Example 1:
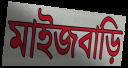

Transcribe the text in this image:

মাইজবাড়ি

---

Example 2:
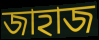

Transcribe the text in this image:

জাহাজ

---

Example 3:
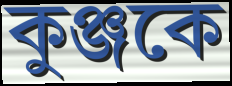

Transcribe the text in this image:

কুঞ্জকে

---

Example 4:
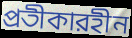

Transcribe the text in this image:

প্রতীকারহীন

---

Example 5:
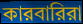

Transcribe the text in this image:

কারবারিরা